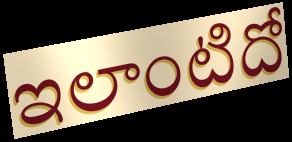
ఇలాంటిదో